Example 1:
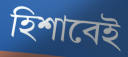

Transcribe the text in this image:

হিশাবেই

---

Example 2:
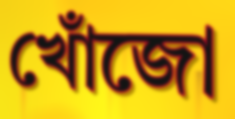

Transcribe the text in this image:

খোঁজো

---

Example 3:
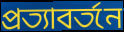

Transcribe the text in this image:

প্রত্যাবর্তনে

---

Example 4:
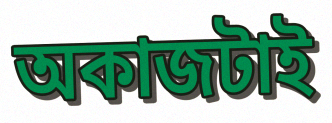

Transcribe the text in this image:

অকাজটাই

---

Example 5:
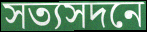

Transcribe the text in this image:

সত্যসদনে